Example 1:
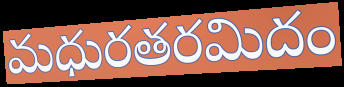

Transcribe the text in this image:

మధురతరమిదం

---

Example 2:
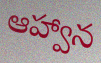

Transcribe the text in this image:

ఆహ్వాన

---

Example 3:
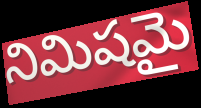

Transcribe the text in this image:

నిమిషమై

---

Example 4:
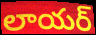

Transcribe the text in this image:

లాయర్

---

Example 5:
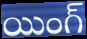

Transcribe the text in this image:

యింగ్